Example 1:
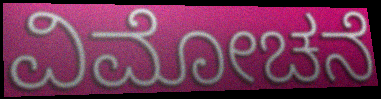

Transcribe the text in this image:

ವಿಮೋಚನೆ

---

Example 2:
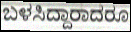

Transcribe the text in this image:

ಬಳಸಿದ್ದಾರಾದರೂ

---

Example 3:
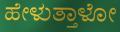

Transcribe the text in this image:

ಹೇಳುತ್ತಾಳೋ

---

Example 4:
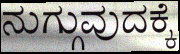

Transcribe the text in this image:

ನುಗ್ಗುವುದಕ್ಕೆ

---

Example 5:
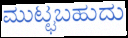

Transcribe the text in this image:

ಮುಟ್ಟಬಹುದು